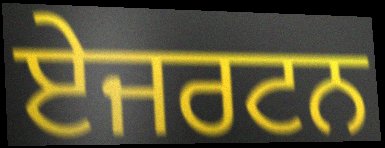
ਏਜਰਟਨ